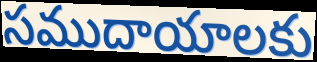
సముదాయాలకు